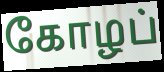
கோழப்